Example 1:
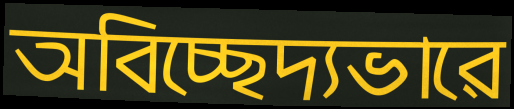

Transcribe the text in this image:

অবিচ্ছেদ্যভাৱে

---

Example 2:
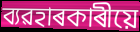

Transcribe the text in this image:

ব্যৱহাৰকাৰীয়ে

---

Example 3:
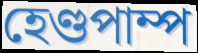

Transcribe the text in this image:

হেণ্ডপাম্প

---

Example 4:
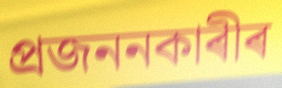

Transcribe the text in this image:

প্ৰজননকাৰীৰ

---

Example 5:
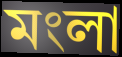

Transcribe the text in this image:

মংলা